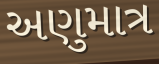
અણુમાત્ર